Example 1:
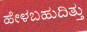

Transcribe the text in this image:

ಹೇಳಬಹುದಿತ್ತು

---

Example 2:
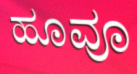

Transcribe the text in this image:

ಹೂವೂ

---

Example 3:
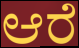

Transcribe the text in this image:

ಆರೆ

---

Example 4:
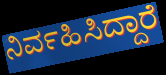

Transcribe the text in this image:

ನಿರ್ವಹಿಸಿದ್ದಾರೆ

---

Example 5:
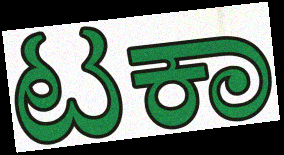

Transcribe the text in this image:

ಟಕಾ